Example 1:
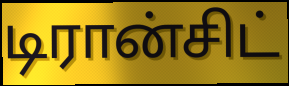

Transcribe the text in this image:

டிரான்சிட்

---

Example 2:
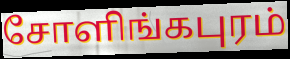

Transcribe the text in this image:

சோளிங்கபுரம்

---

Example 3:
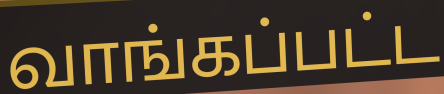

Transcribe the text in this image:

வாங்கப்பட்ட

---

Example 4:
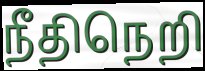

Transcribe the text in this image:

நீதிநெறி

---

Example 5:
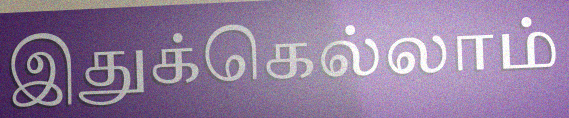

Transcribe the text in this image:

இதுக்கெல்லாம்